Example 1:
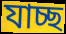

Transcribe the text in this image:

যাচ্ছ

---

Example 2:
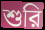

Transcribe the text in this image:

শুরি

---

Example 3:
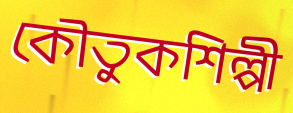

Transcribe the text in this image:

কৌতুকশিল্পী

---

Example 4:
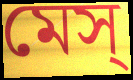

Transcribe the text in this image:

মেস্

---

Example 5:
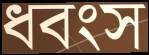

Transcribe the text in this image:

ধবংস